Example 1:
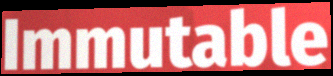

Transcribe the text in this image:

Immutable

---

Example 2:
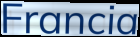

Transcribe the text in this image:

Francia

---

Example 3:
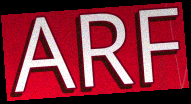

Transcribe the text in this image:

ARF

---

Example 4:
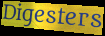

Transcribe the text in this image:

Digesters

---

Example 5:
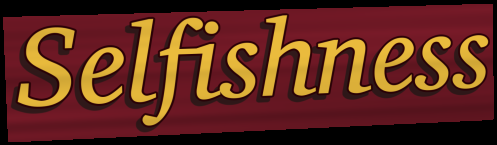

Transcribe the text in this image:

Selfishness